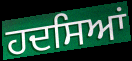
ਹਦਸਿਆਂ